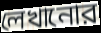
লেখানোর